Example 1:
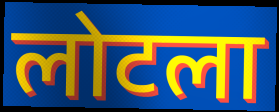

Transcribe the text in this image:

लोटला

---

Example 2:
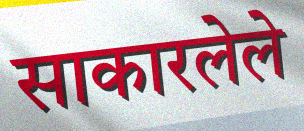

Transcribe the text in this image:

साकारलेले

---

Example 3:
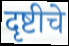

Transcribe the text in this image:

दृष्टीचे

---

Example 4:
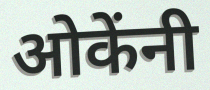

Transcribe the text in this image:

ओकेंनी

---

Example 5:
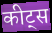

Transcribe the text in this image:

कीट्‌स